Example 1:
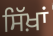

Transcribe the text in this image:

ਸਿੱਖ਼ਾਂ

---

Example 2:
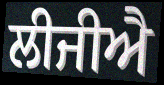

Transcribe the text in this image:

ਲੀਜੀਐ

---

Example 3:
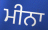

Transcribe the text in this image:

ਮੀਨਾ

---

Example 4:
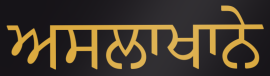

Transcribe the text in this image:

ਅਸਲਾਖਾਨੇ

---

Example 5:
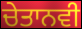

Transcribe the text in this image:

ਚੇਤਾਨਵੀ